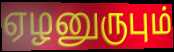
ஏழனுருபும்